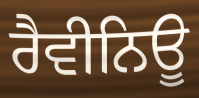
ਰੈਵੀਨਿਊ